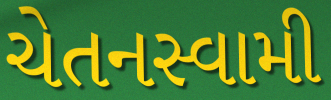
ચેતનસ્વામી